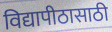
विद्यापीठासाठी